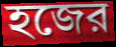
হজের